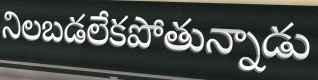
నిలబడలేకపోతున్నాడు